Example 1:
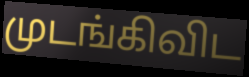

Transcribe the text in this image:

முடங்கிவிட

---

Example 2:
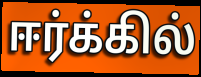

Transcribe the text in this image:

ஈர்க்கில்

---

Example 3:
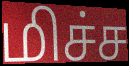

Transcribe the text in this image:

மிச்ச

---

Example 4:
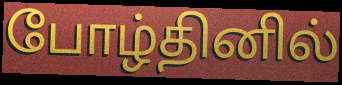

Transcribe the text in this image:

போழ்தினில்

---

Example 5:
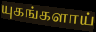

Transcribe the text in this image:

யுகங்களாய்